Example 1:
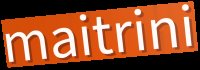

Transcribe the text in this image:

maitrini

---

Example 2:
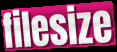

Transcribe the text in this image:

filesize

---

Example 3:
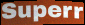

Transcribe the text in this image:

Superr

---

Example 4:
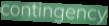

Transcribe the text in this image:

contingency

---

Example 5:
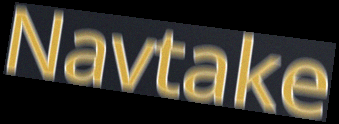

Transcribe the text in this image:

Navtake